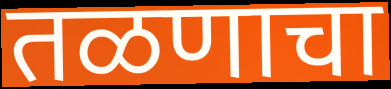
तळणाचा